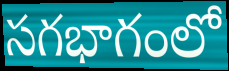
సగభాగంలో